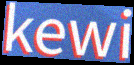
kewi